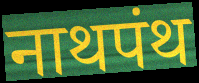
नाथपंथ